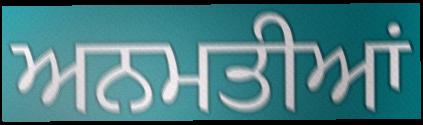
ਅਨਮਤੀਆਂ